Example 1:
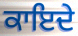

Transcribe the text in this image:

ਕਾਇਦੇ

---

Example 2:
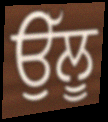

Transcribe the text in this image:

ਉੱਲੂ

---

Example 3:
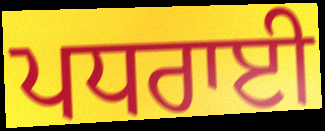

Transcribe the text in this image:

ਪਧਰਾਈ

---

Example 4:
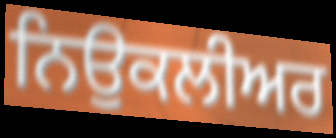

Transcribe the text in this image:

ਨਿਉਕਲੀਅਰ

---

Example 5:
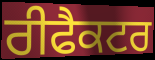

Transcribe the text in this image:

ਰੀਫੈਕਟਰ